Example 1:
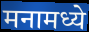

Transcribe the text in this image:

मनामध्ये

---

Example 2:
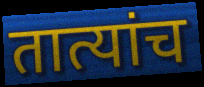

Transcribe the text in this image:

तात्यांच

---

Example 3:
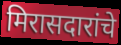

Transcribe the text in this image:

मिरासदारांचे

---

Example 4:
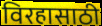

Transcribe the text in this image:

विरहासाठी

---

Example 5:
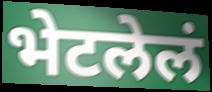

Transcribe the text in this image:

भेटलेलं